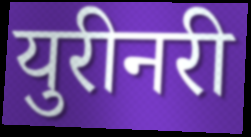
युरीनरी